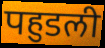
पहुडली